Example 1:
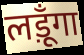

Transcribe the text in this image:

लड़ूँगा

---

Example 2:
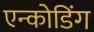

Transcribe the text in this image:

एन्कोडिंग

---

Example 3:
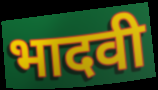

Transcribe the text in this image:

भादवी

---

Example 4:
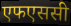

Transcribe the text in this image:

एफएससी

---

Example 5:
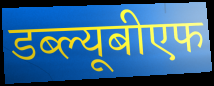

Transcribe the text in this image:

डब्ल्यूबीएफ